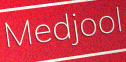
Medjool